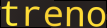
treno